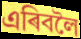
এৰিবলৈ